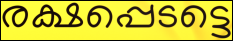
രക്ഷപ്പെടട്ടെ